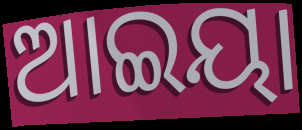
ଆଇୟା